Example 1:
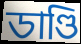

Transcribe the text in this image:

ডাণ্ডি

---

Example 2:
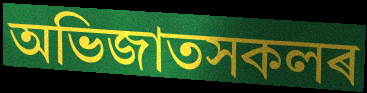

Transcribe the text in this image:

অভিজাতসকলৰ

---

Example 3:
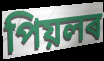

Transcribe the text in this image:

পিয়লৰ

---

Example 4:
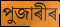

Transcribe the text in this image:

পুজাৰীৰ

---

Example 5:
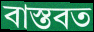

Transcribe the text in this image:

বাস্তবত